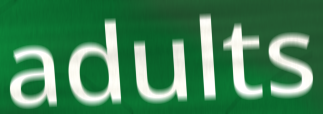
adults